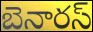
బెనారస్